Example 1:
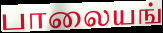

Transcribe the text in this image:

பாலையங்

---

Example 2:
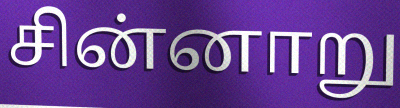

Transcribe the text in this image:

சின்னாறு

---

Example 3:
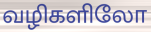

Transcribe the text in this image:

வழிகளிலோ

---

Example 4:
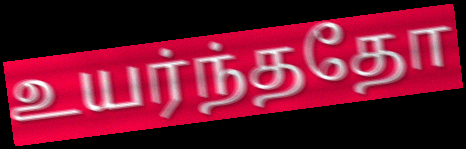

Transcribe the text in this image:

உயர்ந்ததோ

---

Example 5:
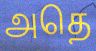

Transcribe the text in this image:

அதெ